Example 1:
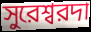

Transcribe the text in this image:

সুরেশ্বরদা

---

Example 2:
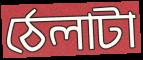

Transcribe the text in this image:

ঠেলাটা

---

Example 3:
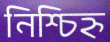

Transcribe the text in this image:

নিশ্চিহ্ন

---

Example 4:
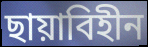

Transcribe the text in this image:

ছায়াবিহীন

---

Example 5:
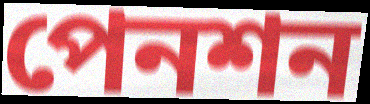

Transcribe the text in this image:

পেনশন